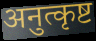
अनुत्कृष्ट